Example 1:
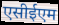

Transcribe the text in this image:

एसीईएम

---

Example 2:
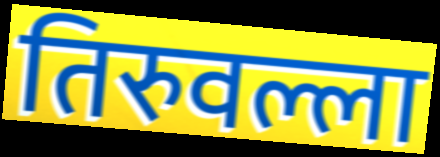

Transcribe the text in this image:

तिरुवल्ला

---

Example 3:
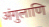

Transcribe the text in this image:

अंगुलाणि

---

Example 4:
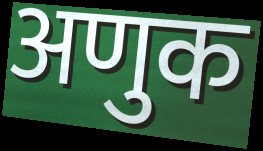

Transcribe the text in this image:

अणुक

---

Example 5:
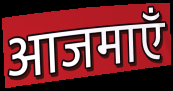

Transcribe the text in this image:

आजमाएँ